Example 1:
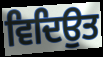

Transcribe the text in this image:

ਵਿਦਿਉਤ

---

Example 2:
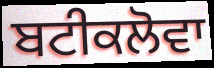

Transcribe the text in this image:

ਬਟੀਕਲੋਵਾ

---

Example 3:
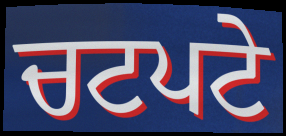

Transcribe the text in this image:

ਚਟਪਟੇ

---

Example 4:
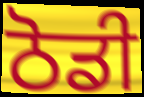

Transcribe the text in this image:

ਠੋਡੀ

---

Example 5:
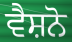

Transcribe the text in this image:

ਵੈਸ਼ਨੋ